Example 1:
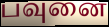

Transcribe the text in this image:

பவுனை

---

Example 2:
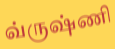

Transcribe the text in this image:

வ்ருஷ்ணி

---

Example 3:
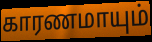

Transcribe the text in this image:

காரணமாயும்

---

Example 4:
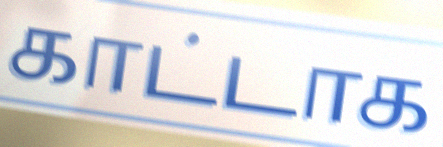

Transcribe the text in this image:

காட்டாக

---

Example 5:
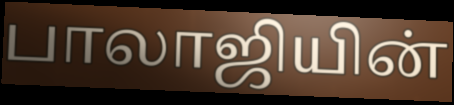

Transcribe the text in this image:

பாலாஜியின்